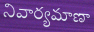
నివార్యమాణా